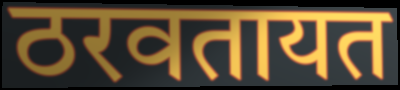
ठरवतायत